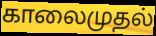
காலைமுதல்